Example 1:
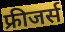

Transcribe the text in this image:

फ्रीजर्स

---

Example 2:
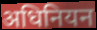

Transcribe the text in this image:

अधिनियन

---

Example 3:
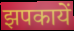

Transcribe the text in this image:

झपकायें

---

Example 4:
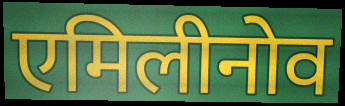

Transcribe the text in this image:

एमिलीनोव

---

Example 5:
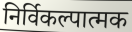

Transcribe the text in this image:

निर्विकल्पात्मक